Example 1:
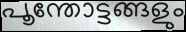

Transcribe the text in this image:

പൂന്തോട്ടങ്ങളും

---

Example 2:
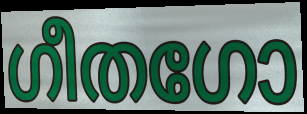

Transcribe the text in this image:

ഗീതഗോ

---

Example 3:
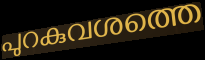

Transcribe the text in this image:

പുറകുവശത്തെ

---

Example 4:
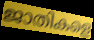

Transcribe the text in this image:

ജാതികളെ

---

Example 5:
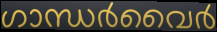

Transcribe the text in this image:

ഗാന്ധർവൈർ